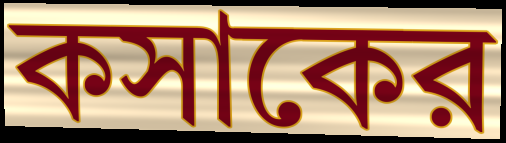
কসাকের